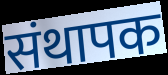
संथापक